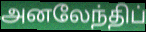
அனலேந்திப்